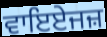
ਵਾਇਏਜਜ਼